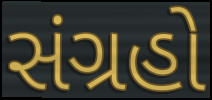
સંગ્રહો